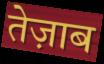
तेज़ाब